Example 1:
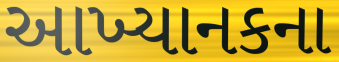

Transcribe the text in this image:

આખ્યાનકના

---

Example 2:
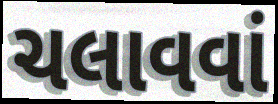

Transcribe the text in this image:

ચલાવવાં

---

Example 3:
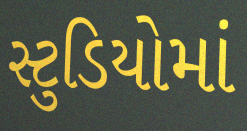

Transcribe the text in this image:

સ્ટુડિયોમાં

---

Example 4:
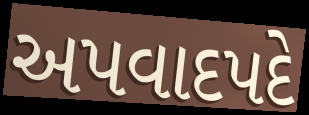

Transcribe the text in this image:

અપવાદપદે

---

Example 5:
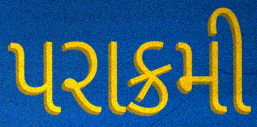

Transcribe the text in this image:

પરાક્રમી